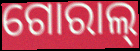
ଗୋରାଲ୍